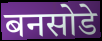
बनसोडे